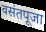
वसंतपूजा